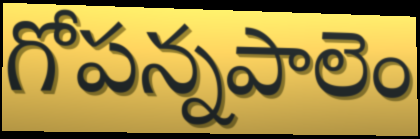
గోపన్నపాలెం